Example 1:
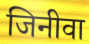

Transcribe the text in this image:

जिनीवा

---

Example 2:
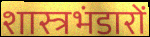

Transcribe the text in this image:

शास्त्रभंडारों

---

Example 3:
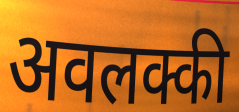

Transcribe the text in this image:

अवलक्की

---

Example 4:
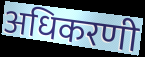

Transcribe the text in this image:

अधिकरणी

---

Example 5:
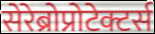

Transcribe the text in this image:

सेरेब्रोप्रोटेक्टर्स